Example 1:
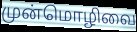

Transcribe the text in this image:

முன்மொழிவை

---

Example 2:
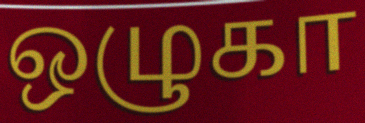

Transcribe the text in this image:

ஒழுகா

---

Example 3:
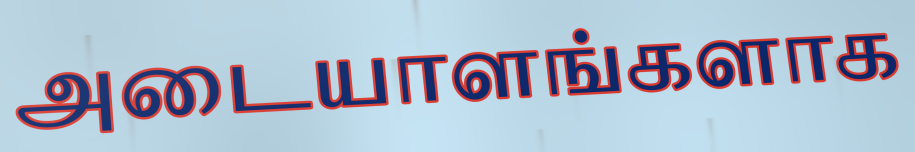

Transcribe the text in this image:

அடையாளங்களாக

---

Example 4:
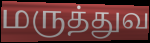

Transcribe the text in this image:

மருத்துவ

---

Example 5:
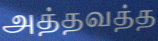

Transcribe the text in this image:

அத்தவத்த